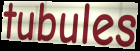
tubules